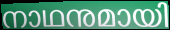
നാഥനുമായി